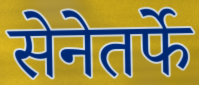
सेनेतर्फे